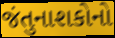
જંતુનાશકોનો